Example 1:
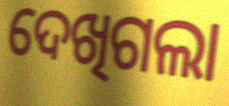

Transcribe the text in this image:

ଦେଖିଗଲା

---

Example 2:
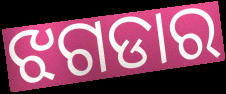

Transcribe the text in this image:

ଝଗଡାର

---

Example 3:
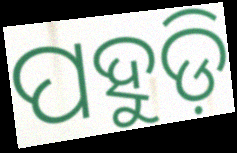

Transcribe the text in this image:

ପହୁଡ଼ି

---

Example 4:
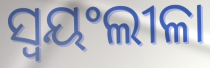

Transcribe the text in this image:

ସ୍ବୟଂଲୀଳା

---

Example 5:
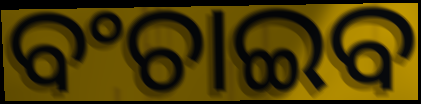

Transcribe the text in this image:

ବଂଚାଇବ